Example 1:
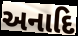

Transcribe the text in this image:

અનાદિ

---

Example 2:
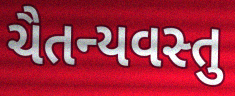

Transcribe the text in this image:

ચૈતન્યવસ્તુ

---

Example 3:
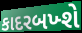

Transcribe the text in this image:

કાદરબખ્શે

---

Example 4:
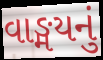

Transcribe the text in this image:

વાઙ્મયનું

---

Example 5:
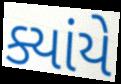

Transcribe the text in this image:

ક્યાંયે